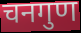
चनगुण